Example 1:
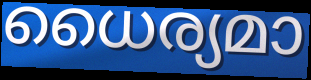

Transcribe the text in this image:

ധൈര്യമാ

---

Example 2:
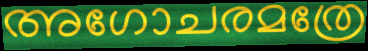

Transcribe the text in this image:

അഗോചരമത്രേ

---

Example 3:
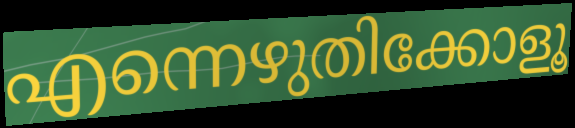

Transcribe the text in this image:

എന്നെഴുതിക്കോളൂ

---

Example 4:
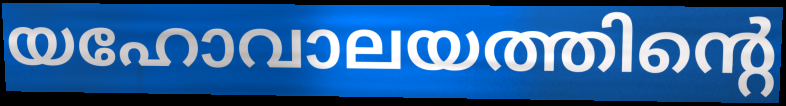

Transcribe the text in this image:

യഹോവാലയത്തിന്റെ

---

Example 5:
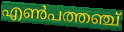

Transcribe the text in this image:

എൺപത്തഞ്ച്